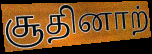
சூதினாற்